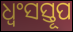
ଧ୍ୱଂସସ୍ତୂପ